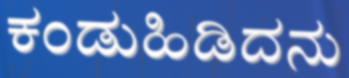
ಕಂಡುಹಿಡಿದನು